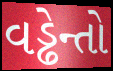
વડ્ઢેન્તો